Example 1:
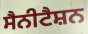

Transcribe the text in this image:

ਸੈਨੀਟੈਸ਼ਨ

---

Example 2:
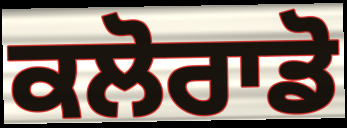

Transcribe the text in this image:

ਕਲੋਰਾਡੋ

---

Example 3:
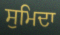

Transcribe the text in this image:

ਸੁਮਿਦਾ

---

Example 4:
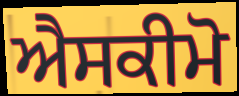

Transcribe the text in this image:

ਐਸਕੀਮੋ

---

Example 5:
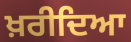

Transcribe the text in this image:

ਖ਼ਰੀਦਿਆ